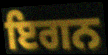
ਇਗਨ